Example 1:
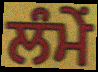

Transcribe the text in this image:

ਲੰਮੇਂ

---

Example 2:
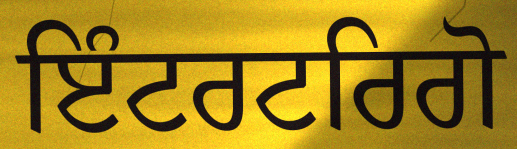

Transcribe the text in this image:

ਇੰਟਰਟਰਿਗੋ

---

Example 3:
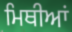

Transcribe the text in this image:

ਮਿਥੀਆਂ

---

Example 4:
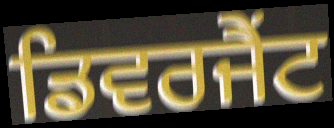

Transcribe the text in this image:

ਡਿਵਰਜੈਂਟ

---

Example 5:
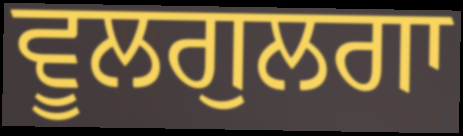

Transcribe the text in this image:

ਵੂਲਗੁਲਗਾ